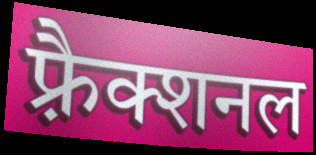
फ़्रैक्शनल